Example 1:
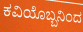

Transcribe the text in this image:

ಕವಿಯೊಬ್ಬನಿಂದ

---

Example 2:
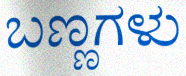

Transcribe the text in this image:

ಬಣ್ಣಗಳು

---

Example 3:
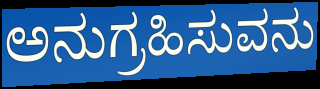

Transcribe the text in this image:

ಅನುಗ್ರಹಿಸುವನು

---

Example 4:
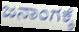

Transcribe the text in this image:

ಜನಾಂಗಕ್ಕೆ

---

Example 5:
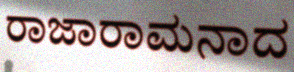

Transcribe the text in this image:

ರಾಜಾರಾಮನಾದ